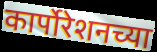
कार्पोरेशनच्या